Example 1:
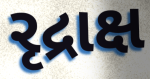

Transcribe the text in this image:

રૃદ્રાક્ષ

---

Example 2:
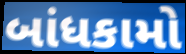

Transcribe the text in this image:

બાંધકામો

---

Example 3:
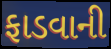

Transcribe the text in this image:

ફાડવાની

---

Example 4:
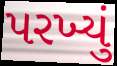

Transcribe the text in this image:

પરખ્યું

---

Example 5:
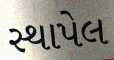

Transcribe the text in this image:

સ્થાપેલ